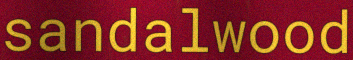
sandalwood